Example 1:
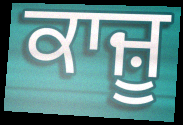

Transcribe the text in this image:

ਕਾਜ਼ੂ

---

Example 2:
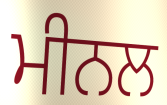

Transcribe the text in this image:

ਮੀਨਲ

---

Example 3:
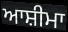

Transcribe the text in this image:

ਆਸ਼ੀਮਾ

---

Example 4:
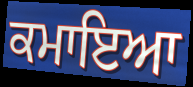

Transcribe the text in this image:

ਕਮਾਇਆ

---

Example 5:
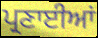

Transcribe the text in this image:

ਪ੍ਰਣਾਈਆਂ